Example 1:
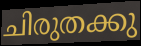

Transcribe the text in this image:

ചിരുതക്കു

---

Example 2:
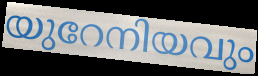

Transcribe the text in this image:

യുറേനിയവും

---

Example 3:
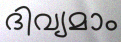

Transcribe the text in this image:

ദിവ്യമാം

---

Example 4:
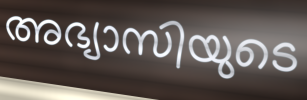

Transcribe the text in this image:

അഭ്യാസിയുടെ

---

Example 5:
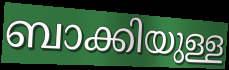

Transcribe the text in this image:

ബാക്കിയുള്ള